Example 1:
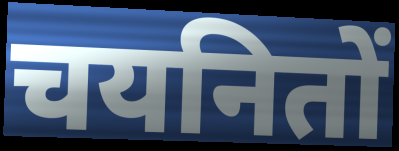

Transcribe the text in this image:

चयनितों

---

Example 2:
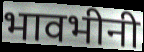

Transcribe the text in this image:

भावभीनी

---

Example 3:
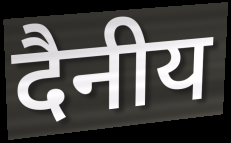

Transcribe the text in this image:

दैनीय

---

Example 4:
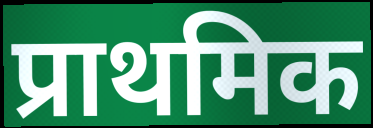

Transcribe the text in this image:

प्राथमिक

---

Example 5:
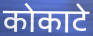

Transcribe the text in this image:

कोकाटे